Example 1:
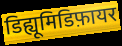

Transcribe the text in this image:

डिह्यूमिडिफ़ायर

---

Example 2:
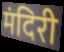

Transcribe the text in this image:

मंदिरी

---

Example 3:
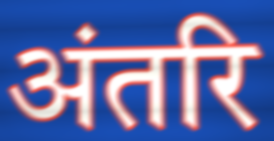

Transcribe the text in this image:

अंतरि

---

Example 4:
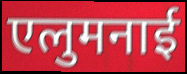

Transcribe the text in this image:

एलुमनाई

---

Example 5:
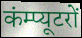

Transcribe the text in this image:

कंम्प्यूटरों